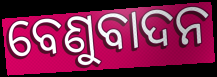
ବେଣୁବାଦନ